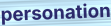
personation